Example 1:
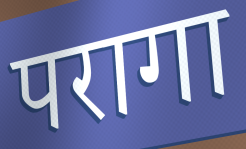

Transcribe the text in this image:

परागा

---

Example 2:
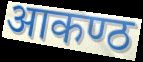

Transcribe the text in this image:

आकण्ठ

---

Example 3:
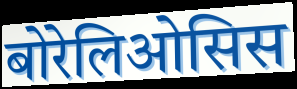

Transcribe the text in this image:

बोरेलिओसिस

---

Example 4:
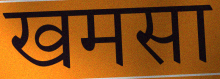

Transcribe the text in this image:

खमसा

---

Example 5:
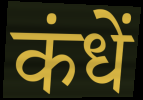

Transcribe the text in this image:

कंधें